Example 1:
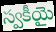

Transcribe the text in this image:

స్వకీయై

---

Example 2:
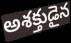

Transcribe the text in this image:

అశక్తుడైన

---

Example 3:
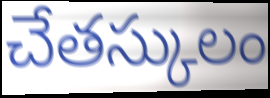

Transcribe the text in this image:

చేతస్కులం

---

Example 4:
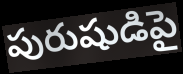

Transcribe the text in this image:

పురుషుడిపై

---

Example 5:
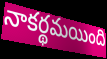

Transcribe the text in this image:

నాకర్థమయింది